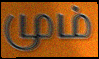
மும்